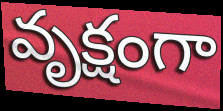
వృక్షంగా